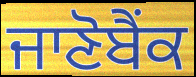
ਜਾਣੋਬੈਂਕ